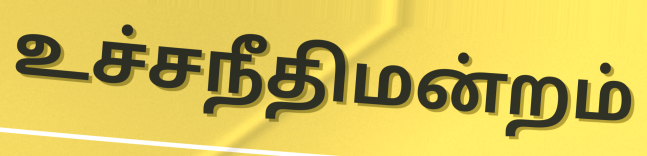
உச்சநீதிமன்றம்